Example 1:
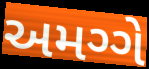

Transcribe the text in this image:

અમગ્ગે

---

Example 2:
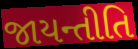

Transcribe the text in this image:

જાયન્તીતિ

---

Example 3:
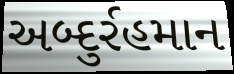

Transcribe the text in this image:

અબ્દુર્રહમાન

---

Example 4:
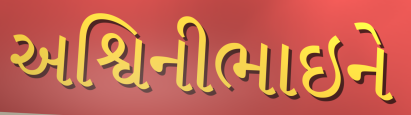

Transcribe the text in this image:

અશ્વિનીભાઇને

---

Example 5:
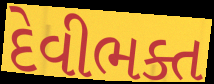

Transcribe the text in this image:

દેવીભક્ત